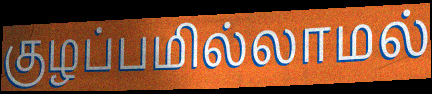
குழப்பமில்லாமல்